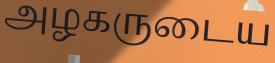
அழகருடைய